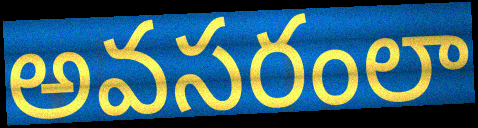
అవసరంలా